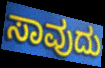
ಸಾವುದು